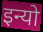
इन्यो